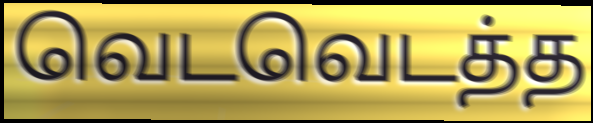
வெடவெடத்த